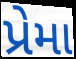
પ્રેમા